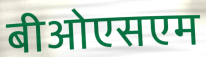
बीओएसएम